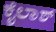
ಕೈಲಾಶ್